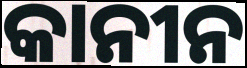
କାନୀନ